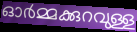
ഓർമ്മക്കുറവുള്ള